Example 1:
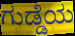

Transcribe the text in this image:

ಗುಡ್ಡೆಯ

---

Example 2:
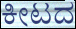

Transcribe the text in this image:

ಕೀಟದ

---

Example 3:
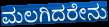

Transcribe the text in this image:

ಮಲಗಿದರೇನು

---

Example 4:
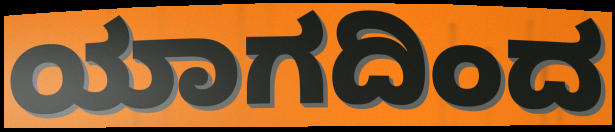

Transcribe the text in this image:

ಯಾಗದಿಂದ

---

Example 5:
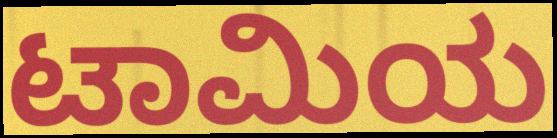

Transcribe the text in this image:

ಟಾಮಿಯ